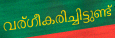
വര്ഗീകരിച്ചിട്ടുണ്ട്